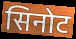
सिनोट